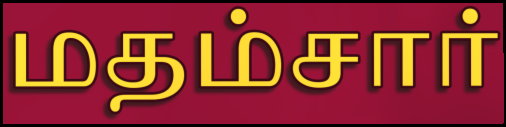
மதம்சார்